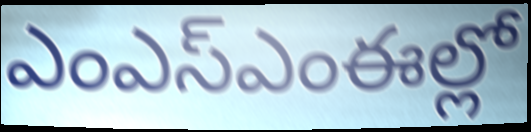
ఎంఎస్ఎంఈల్లో